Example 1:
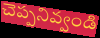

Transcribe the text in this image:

చెప్పనివ్వండి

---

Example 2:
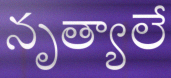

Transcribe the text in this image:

నృత్యాలే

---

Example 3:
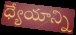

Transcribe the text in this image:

ధ్యేయాన్ని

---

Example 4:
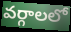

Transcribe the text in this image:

వర్గాలలో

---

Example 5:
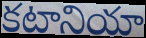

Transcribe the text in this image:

కటానియా